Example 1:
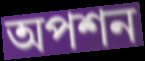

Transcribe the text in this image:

অপশন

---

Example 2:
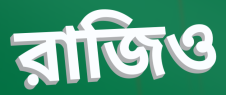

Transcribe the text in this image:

রাজিও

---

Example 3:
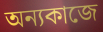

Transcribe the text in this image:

অন্যকাজে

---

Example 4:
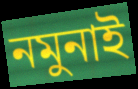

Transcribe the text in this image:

নমুনাই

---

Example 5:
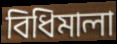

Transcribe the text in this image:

বিধিমালা